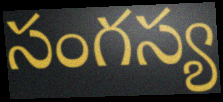
సంగస్య